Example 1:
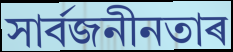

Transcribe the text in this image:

সাৰ্বজনীনতাৰ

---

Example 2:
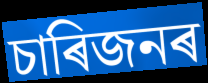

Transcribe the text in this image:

চাৰিজনৰ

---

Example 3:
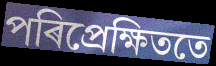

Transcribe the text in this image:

পৰিপ্ৰেক্ষিততে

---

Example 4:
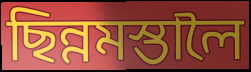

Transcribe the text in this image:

ছিন্নমস্তালৈ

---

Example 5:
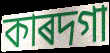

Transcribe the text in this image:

কাৰদগা